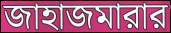
জাহাজমারার